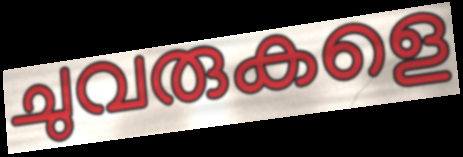
ചുവരുകളെ